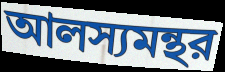
আলস্যমন্থর